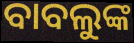
ବାବଲୁଙ୍କ